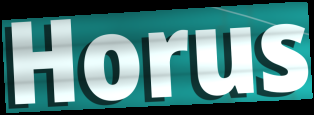
Horus